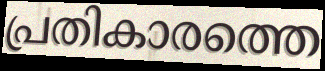
പ്രതികാരത്തെ